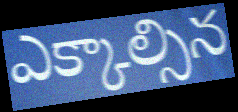
ఎక్కాల్సిన